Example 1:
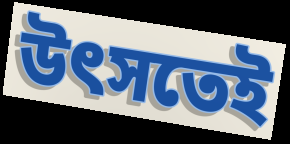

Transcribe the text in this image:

উৎসতেই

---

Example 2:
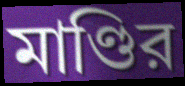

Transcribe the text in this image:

মাণ্ডির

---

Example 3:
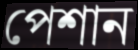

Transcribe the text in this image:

পেশান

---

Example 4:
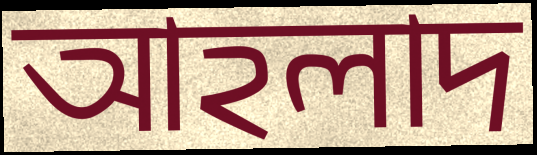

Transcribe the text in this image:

আহলাদ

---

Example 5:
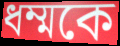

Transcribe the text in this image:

ধম্মকে